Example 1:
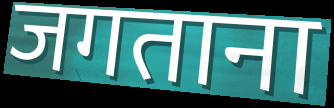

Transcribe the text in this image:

जगताना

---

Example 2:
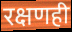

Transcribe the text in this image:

रक्षणही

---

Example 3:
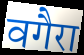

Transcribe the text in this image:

वगैरा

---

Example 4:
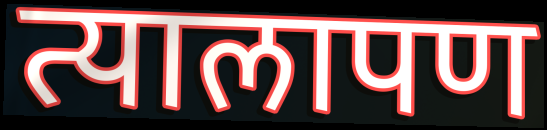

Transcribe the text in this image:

त्यालापण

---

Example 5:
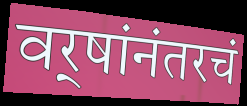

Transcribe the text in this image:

वर्षांनंतरचं